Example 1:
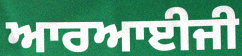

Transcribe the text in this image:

ਆਰਆਈਜੀ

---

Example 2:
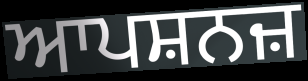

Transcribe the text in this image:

ਆਪਸ਼ਨਜ਼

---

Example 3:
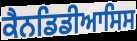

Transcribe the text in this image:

ਕੈਨਡਿਡੀਆਸਿਸ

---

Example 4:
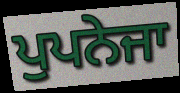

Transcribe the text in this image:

ਪੁਪਨੇਜਾ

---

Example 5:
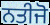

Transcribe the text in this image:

ਨਤੀਜੋ